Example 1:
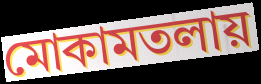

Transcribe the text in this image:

মোকামতলায়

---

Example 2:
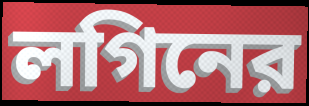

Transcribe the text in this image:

লগিনের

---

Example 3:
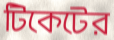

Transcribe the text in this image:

টিকেটের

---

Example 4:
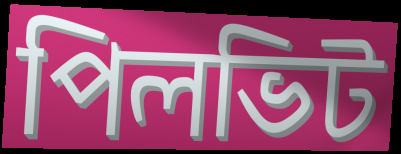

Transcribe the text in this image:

পিলভিট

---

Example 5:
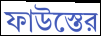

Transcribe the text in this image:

ফাউস্তের